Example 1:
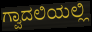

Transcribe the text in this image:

ಗ್ವಾದಲಿಯಲ್ಲಿ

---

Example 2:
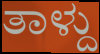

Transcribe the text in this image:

ತಾಳ್ದು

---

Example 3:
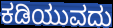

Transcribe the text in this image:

ಕಡಿಯುವದು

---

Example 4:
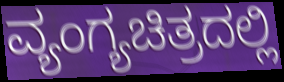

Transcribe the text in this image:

ವ್ಯಂಗ್ಯಚಿತ್ರದಲ್ಲಿ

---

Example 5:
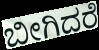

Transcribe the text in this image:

ಬೀಗಿದರೆ